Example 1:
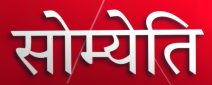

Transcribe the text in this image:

सोम्येति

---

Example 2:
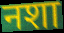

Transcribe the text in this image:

नशा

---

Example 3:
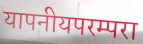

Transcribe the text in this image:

यापनीयपरम्परा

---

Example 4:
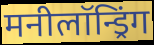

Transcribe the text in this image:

मनीलॉन्ड्रिंग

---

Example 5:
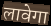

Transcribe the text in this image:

लावेगा